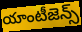
యాంటీజెన్స్